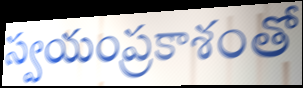
స్వయంప్రకాశంతో